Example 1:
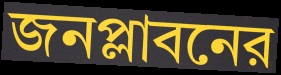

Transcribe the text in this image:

জনপ্লাবনের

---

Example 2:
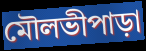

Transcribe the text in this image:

মৌলভীপাড়া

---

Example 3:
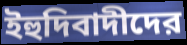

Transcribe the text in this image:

ইহুদিবাদীদের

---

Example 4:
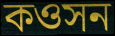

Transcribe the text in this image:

কওসন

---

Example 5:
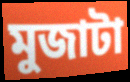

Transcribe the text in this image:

মুজাটা